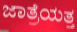
ಜಾತ್ರೆಯತ್ತ